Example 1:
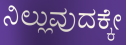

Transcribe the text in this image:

ನಿಲ್ಲುವುದಕ್ಕೇ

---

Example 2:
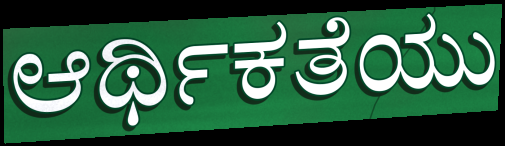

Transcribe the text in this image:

ಆರ್ಥಿಕತೆಯು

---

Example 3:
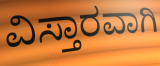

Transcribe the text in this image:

ವಿಸ್ತಾರವಾಗಿ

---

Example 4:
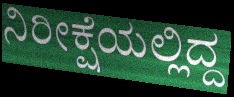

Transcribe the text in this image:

ನಿರೀಕ್ಷೆಯಲ್ಲಿದ್ದ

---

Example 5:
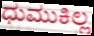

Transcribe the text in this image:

ಧುಮುಕಿಲ್ಲ